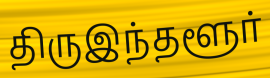
திருஇந்தளூர்